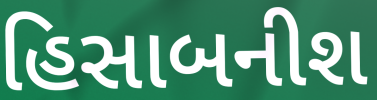
હિસાબનીશ